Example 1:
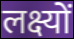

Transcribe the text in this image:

लक्ष्‍यों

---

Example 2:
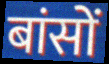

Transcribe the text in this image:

बांसों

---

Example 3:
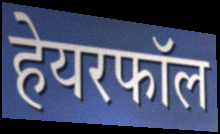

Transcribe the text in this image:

हेयरफॉल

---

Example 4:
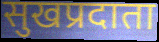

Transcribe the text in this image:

सुखप्रदाता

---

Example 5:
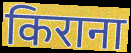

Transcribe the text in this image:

किराना